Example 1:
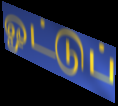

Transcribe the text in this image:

ஓட்டுப்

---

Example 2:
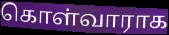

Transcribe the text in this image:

கொள்வாராக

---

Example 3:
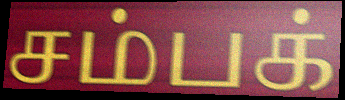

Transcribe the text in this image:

சம்பக்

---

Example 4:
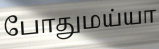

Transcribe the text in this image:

போதுமய்யா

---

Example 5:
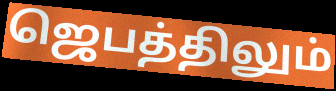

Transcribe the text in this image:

ஜெபத்திலும்